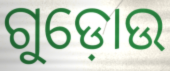
ଗୁଡ଼ୋଉ